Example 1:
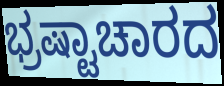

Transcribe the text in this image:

ಭ್ರಷ್ಟಾಚಾರದ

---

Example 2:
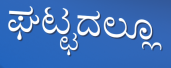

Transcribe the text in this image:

ಘಟ್ಟದಲ್ಲೂ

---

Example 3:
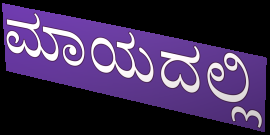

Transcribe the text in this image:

ಮಾಯದಲ್ಲಿ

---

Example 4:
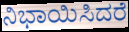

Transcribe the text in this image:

ನಿಭಾಯಿಸಿದರೆ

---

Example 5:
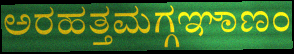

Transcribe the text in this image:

ಅರಹತ್ತಮಗ್ಗಞಾಣಂ